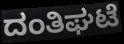
ದಂತಿಘಟೆ